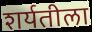
शर्यतीला